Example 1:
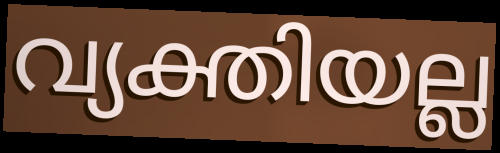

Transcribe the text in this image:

വ്യക്തിയല്ല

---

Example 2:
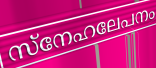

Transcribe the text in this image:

സ്നേഹലേപനം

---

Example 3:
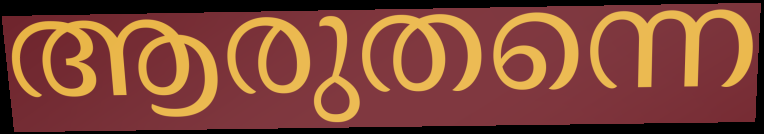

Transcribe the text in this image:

ആരുതന്നെ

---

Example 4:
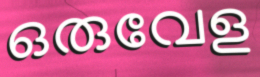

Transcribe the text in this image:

ഒരുവേള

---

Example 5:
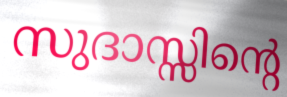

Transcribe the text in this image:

സുദാസ്സിന്റെ